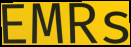
EMRs